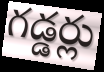
గడ్డర్లు